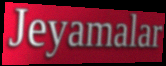
Jeyamalar